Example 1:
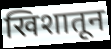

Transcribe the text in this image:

खिशातून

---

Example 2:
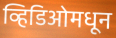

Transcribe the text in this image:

व्हिडिओमधून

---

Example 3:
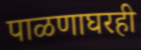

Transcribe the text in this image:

पाळणाघरही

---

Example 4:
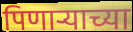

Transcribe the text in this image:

पिणाऱ्याच्या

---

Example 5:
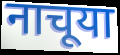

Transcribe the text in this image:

नाचूया